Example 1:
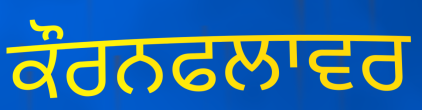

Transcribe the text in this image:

ਕੌਰਨਫਲਾਵਰ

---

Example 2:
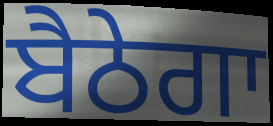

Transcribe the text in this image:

ਬੈਠੇਗਾ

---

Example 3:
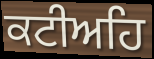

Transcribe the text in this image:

ਕਟੀਅਹਿ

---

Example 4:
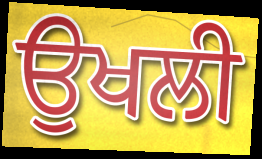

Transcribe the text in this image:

ਉਖਲੀ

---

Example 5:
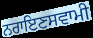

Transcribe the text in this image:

ਨਰਾਇਣਸਵਾਮੀ